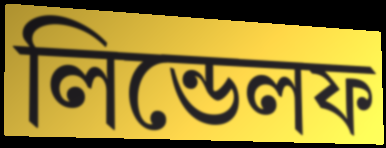
লিন্ডেলফ